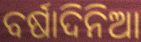
ବର୍ଷାଦିନିଆ